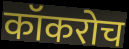
कॉकरोच